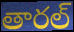
తారల్